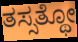
ತಸ್ಸತ್ಥೋ